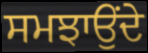
ਸਮਝਾਉਂਦੇ